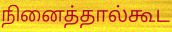
நினைத்தால்கூட